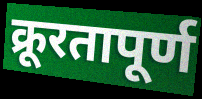
क्रूरतापूर्ण